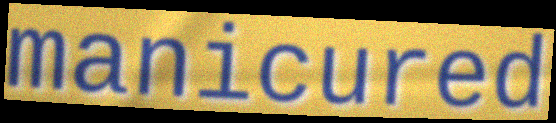
manicured